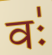
वः॑